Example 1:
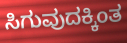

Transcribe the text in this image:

ಸಿಗುವುದಕ್ಕಿಂತ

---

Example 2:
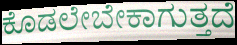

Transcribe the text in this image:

ಕೊಡಲೇಬೇಕಾಗುತ್ತದೆ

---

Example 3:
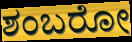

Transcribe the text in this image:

ಶಂಬರೋ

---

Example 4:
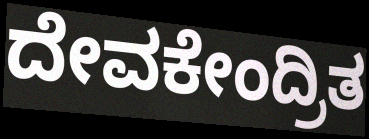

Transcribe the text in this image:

ದೇವಕೇಂದ್ರಿತ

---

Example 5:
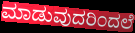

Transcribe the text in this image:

ಮಾಡುವುದರಿಂದಲೆ